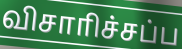
விசாரிச்சப்ப